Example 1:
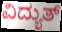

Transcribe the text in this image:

ವಿದ್ಯುತ್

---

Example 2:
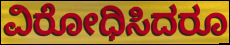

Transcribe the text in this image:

ವಿರೋಧಿಸಿದರೂ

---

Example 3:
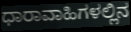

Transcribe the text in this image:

ಧಾರಾವಾಹಿಗಳಲ್ಲಿನ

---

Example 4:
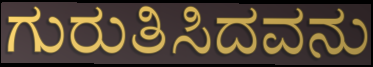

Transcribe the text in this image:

ಗುರುತಿಸಿದವನು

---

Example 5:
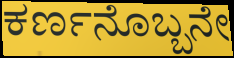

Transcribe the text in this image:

ಕರ್ಣನೊಬ್ಬನೇ